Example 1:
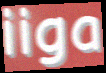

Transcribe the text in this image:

iiga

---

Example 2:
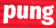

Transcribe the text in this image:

pung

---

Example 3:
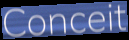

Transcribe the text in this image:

Conceit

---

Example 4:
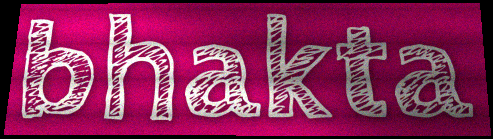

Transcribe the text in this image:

bhakta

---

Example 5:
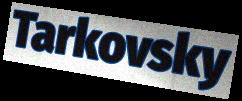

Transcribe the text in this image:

Tarkovsky